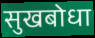
सुखबोधा